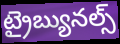
ట్రైబ్యునల్స్